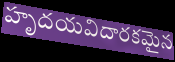
హృదయవిదారకమైన